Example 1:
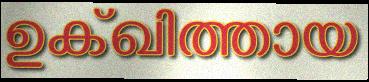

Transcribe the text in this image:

ഉക്ഖിത്തായ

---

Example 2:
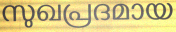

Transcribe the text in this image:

സുഖപ്രദമായ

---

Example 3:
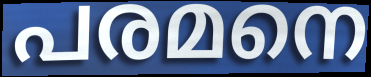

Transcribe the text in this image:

പരമനെ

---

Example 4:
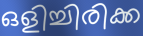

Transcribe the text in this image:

ഒളിച്ചിരിക്ക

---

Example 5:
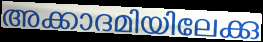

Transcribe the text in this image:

അക്കാദമിയിലേക്കു